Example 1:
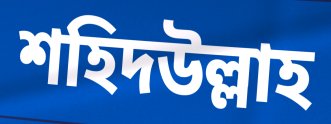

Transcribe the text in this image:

শহিদউল্লাহ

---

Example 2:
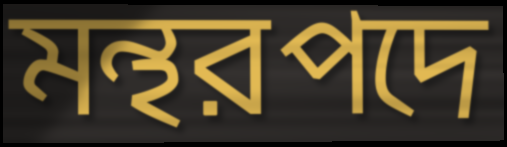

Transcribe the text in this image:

মন্থরপদে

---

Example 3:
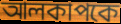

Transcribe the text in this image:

আলকাপকে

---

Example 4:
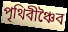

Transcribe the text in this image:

পৃথিবীঞ্চৈব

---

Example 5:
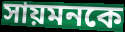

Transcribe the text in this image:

সায়মনকে